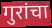
गुरांचा